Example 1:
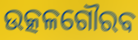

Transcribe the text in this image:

ଉତ୍କଳଗୌରବ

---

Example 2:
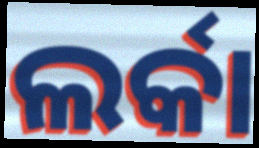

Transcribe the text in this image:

ଲର୍କା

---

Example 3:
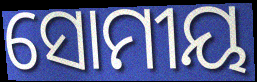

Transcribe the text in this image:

ସୋମୀୟ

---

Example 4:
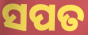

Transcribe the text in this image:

ସପତ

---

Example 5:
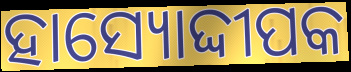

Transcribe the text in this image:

ହାସ୍ୟୋଦ୍ଦୀପକ